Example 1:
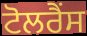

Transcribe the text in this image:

ਟੋਲਰੈਂਸ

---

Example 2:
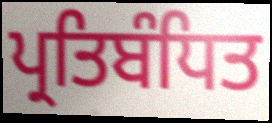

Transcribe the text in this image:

ਪ੍ਰਤਿਬੰਧਿਤ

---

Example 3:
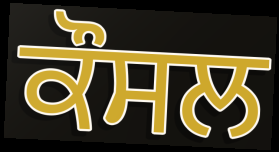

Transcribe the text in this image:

ਕੌਸਲ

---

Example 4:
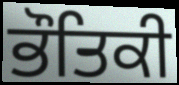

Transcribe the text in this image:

ਭੌਤਿਕੀ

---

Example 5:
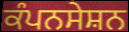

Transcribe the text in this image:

ਕੰਪਨਸੇਸ਼ਨ